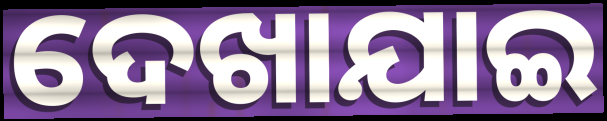
ଦେଖାଯାଇ